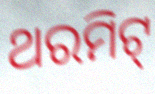
ଥରମିଟ୍